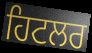
ਹਿਟਲਰ